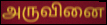
அருவினை